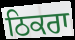
ਠਿਕਰਾ